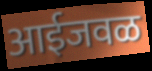
आईजवळ